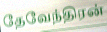
தேவேந்திரன்